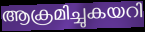
ആക്രമിച്ചുകയറി